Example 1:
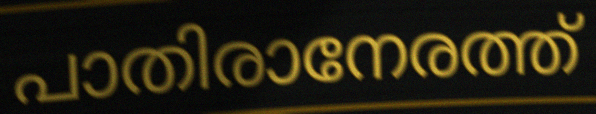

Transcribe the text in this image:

പാതിരാനേരത്ത്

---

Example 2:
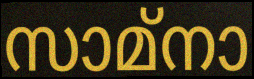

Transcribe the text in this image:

സാമ്നാ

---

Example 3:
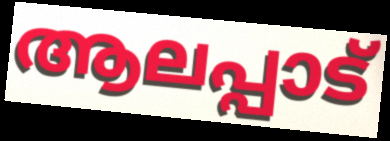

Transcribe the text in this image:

ആലപ്പാട്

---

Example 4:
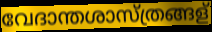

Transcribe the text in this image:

വേദാന്തശാസ്ത്രങ്ങള്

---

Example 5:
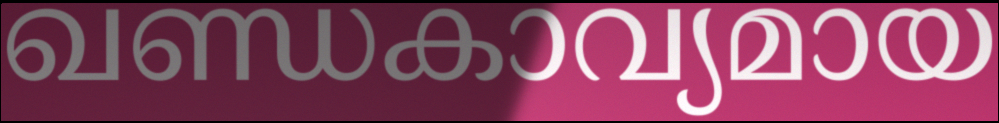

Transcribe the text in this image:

ഖണ്ഡകാവ്യമായ